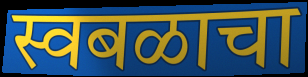
स्वबळाचा